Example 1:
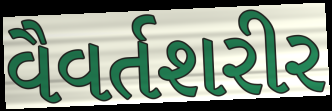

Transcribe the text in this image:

વૈવર્તશરીર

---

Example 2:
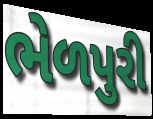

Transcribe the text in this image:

ભેળપુરી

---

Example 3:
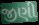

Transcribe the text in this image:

જીણી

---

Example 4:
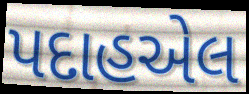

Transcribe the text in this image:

પદાહએલ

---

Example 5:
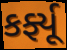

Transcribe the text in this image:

કર્ફ્યૂ